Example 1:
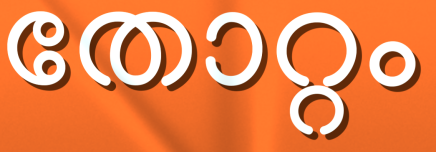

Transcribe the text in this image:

തോറ്റം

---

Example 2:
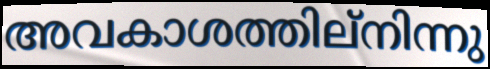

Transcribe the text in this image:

അവകാശത്തില്നിന്നു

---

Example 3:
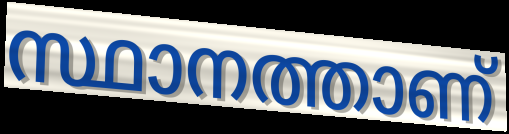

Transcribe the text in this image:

സ്ഥാനത്താണ്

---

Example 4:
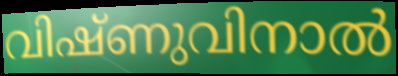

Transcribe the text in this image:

വിഷ്ണുവിനാൽ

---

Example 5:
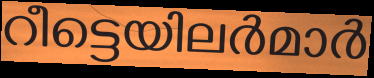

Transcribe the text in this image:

റീട്ടെയിലർമാർ